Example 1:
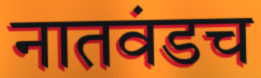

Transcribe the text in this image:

नातवंडच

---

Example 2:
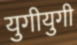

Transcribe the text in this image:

युगीयुगी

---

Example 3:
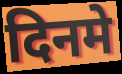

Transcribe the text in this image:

दिनमे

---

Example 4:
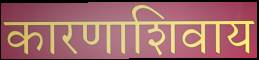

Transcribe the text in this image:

कारणाशिवाय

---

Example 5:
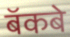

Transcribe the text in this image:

बॅकबे